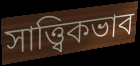
সাত্ত্বিকভাব